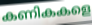
കണികകളെ